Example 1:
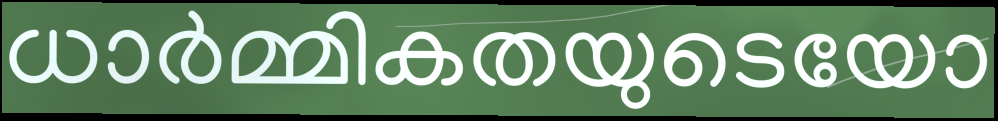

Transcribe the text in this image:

ധാർമ്മികതയുടെയോ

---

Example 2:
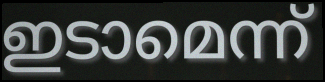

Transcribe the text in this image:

ഇടാമെന്ന്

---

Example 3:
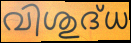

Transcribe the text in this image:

വിശുദ്‌ധ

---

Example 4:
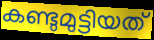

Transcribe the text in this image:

കണ്ടുമുട്ടിയത്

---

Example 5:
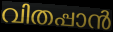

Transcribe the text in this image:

വിതപ്പാൻ